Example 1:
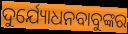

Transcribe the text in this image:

ଦୁର୍ଯ୍ୟୋଧନବାବୁଙ୍କର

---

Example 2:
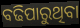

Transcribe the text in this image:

ବଢିପାରୁଥିବା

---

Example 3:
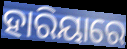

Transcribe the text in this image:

ହାରିୟାରେ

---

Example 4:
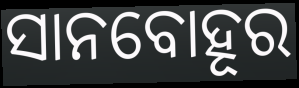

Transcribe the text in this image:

ସାନବୋହୂର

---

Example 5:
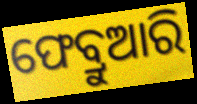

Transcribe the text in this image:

ଫେବ୍ରୁଆରି